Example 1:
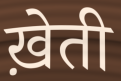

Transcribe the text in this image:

ख़ेती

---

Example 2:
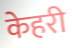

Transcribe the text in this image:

केहरी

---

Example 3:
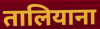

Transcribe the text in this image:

तालियाना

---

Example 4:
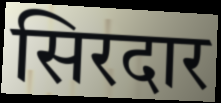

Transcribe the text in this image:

सिरदार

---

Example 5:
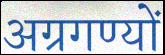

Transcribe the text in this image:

अग्रगण्यों